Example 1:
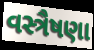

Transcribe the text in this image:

વસ્ત્રૈષણા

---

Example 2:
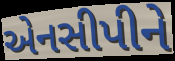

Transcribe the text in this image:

એનસીપીને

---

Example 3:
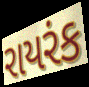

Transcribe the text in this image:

રાયરંક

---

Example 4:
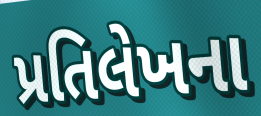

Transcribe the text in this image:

પ્રતિલેખના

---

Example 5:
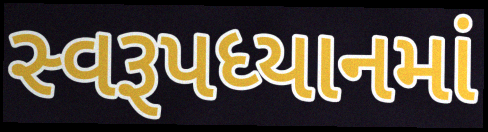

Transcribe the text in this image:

સ્વરૂપધ્યાનમાં